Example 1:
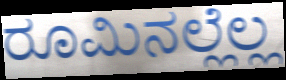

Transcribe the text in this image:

ರೂಮಿನಲ್ಲೆಲ್ಲ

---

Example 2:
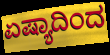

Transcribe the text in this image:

ಏಷ್ಯಾದಿಂದ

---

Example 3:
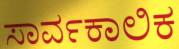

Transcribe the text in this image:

ಸಾರ್ವಕಾಲಿಕ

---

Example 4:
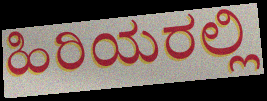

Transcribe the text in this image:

ಹಿರಿಯರಲ್ಲಿ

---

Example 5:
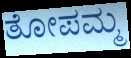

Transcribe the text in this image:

ತೋಪಮ್ಮ